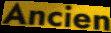
Ancien